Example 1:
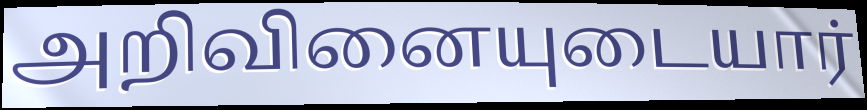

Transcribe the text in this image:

அறிவினையுடையார்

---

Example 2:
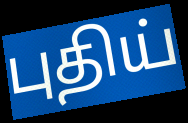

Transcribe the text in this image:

புதிய்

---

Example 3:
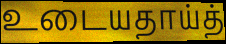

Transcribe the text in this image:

உடையதாய்த்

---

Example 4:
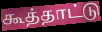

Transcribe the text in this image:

கூத்தாட்டு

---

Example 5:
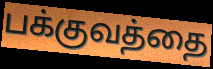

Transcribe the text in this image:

பக்குவத்தை